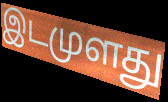
இடமுளது